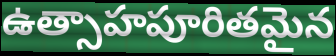
ఉత్సాహపూరితమైన